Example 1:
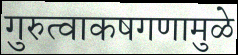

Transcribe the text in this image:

गुरुत्वाकषगणामुळे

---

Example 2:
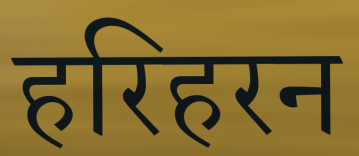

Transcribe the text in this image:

हरिहरन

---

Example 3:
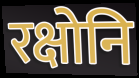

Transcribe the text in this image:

रक्षोनि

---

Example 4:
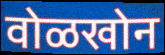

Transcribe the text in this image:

वोळखोन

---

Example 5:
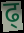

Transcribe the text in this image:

ढ्